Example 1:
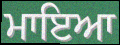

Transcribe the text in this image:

ਮਾਇਆ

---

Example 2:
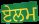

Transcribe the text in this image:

ਏਲਮ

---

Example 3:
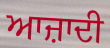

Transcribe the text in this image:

ਆਜ਼ਾਦੀ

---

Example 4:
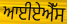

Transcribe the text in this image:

ਆਈਏਐੱਸ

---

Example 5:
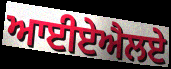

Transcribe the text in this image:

ਆਈਏਐਲਏ